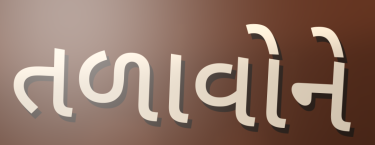
તળાવોને